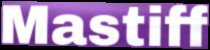
Mastiff